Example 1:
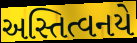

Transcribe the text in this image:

અસ્તિત્વનયે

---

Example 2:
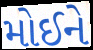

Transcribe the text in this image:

મોઈને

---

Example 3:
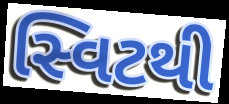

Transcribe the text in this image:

સ્વિટથી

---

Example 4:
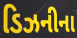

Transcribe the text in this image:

ડિઝનીના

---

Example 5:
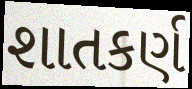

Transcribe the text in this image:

શાતકર્ણ